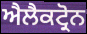
ਐਲੈਕਟ੍ਰੋਨ